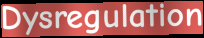
Dysregulation